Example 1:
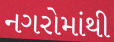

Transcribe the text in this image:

નગરોમાંથી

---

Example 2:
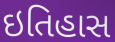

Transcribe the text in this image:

ઇતિહાસ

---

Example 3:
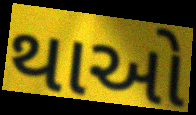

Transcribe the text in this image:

થાઓ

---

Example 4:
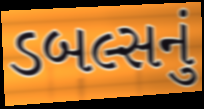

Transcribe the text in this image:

ડબલ્સનું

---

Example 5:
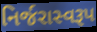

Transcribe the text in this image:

નિર્જરાસ્વરૂપ